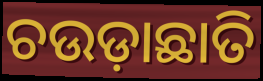
ଚଉଡ଼ାଛାତି